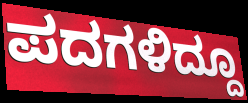
ಪದಗಳಿದ್ದೂ